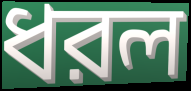
ধরল